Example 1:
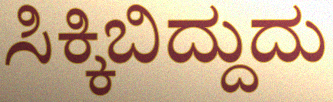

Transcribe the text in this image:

ಸಿಕ್ಕಿಬಿದ್ದುದು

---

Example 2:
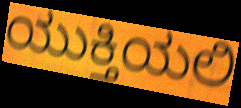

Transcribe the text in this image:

ಯುಕ್ತಿಯಲಿ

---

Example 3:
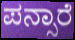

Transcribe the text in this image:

ಪನ್ಸಾರೆ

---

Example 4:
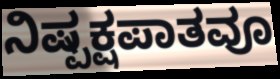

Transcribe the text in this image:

ನಿಷ್ಪಕ್ಷಪಾತವೂ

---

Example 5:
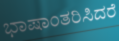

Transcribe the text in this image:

ಭಾಷಾಂತರಿಸಿದರೆ